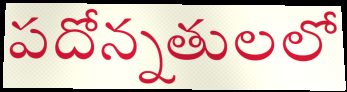
పదోన్నతులలో